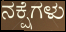
ನಕ್ಷೆಗಳು